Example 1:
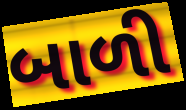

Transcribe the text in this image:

બાળી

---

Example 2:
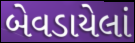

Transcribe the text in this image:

બેવડાયેલાં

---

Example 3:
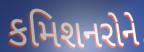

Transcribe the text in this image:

કમિશનરોને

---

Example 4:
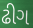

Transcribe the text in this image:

ઢીગ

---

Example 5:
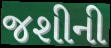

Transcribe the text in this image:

જશીની